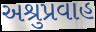
અશ્રુપ્રવાહ